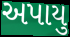
અપાયુ